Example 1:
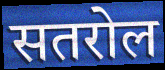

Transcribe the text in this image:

सतरोल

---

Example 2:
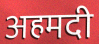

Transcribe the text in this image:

अहमदी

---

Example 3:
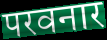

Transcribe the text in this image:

परवनार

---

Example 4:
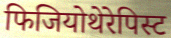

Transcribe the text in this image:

फिजियोथेरेपिस्ट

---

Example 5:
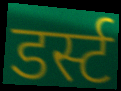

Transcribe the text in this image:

डर्स्ट